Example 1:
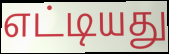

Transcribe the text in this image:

எட்டியது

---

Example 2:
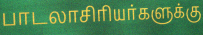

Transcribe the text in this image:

பாடலாசிரியர்களுக்கு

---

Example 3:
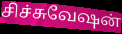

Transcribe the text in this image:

சிச்சுவேஷன்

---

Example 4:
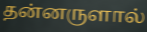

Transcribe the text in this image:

தன்னருளால்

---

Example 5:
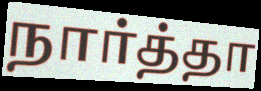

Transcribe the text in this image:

நார்த்தா